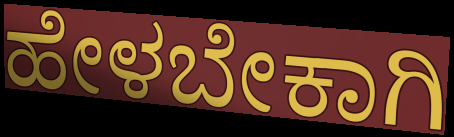
ಹೇಳಬೇಕಾಗಿ